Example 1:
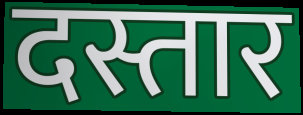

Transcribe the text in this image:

दस्तार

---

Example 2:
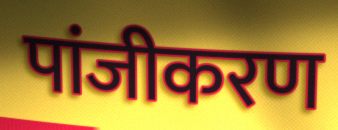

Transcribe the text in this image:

पांजीकरण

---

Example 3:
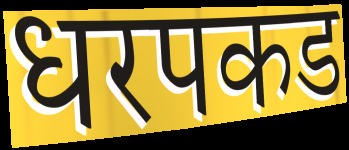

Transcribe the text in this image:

धरपकड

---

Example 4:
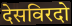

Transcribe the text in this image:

देसविरदो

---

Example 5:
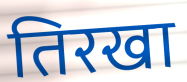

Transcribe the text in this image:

तिरखा